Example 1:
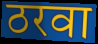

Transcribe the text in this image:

ठरवा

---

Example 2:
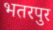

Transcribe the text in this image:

भतरपुर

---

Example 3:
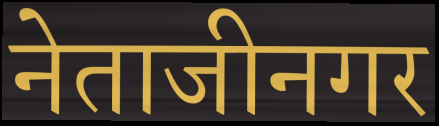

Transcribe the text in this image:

नेताजीनगर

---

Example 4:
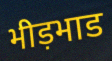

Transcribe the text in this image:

भीड़भाड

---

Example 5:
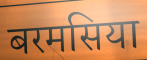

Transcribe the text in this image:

बरमसिया